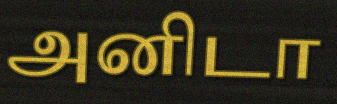
அனிடா